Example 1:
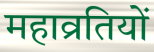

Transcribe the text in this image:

महाव्रतियों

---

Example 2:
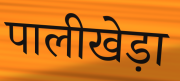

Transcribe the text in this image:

पालीखेड़ा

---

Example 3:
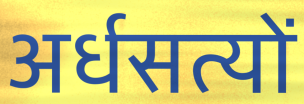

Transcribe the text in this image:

अर्धसत्यों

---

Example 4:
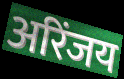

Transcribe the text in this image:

अरिंजय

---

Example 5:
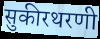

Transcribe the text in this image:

सुकीरथरणी